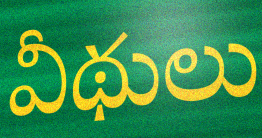
వీథులు